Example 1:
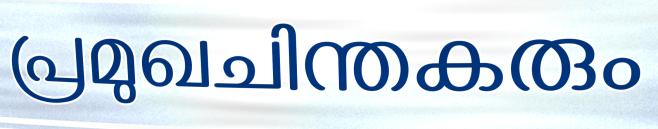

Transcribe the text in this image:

പ്രമുഖചിന്തകരും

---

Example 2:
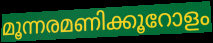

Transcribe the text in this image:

മൂന്നരമണിക്കൂറോളം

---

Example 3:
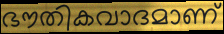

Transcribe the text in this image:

ഭൗതികവാദമാണ്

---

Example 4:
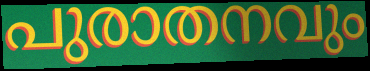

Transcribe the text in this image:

പുരാതനവും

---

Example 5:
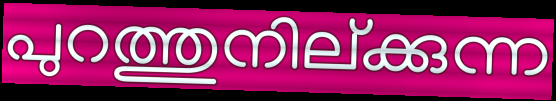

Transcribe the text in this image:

പുറത്തുനില്ക്കുന്ന